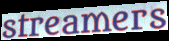
streamers